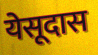
येसूदास